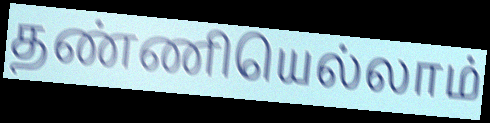
தண்ணியெல்லாம்